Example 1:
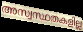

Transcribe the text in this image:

അസ്വസ്ഥതകളില്ല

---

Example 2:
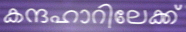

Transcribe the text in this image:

കന്ദഹാറിലേക്ക്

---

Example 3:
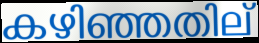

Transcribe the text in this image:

കഴിഞ്ഞതില്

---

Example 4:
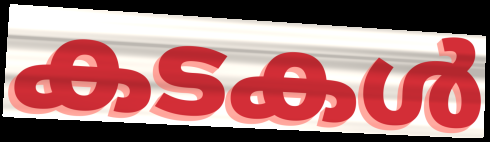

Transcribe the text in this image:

കടകൾ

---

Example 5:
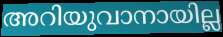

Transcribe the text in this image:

അറിയുവാനായില്ല